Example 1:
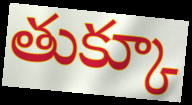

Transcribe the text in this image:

తుక్కూ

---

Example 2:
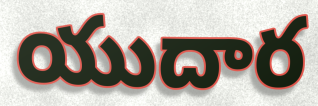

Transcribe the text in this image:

యుదార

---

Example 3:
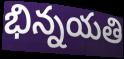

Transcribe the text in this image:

భిన్నయతి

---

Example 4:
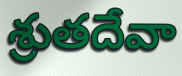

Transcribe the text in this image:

శ్రుతదేవా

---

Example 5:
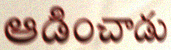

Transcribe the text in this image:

ఆడించాడు